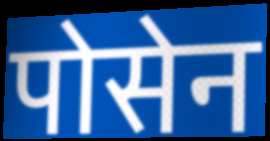
पोसेन